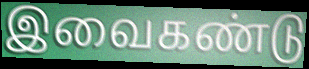
இவைகண்டு